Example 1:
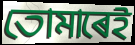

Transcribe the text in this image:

তোমাৰেই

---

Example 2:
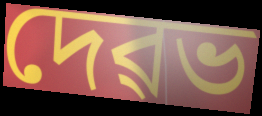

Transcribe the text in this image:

দেৱভ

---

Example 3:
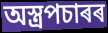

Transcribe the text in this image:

অস্ত্ৰপচাৰৰ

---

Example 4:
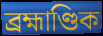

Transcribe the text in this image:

ব্ৰহ্মাণ্ডিক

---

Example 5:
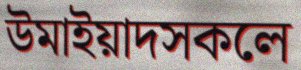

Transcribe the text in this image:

উমাইয়াদসকলে